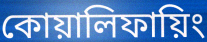
কোয়ালিফায়িং